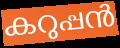
കറുപ്പൻ